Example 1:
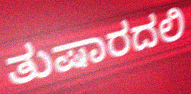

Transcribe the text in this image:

ತುಷಾರದಲಿ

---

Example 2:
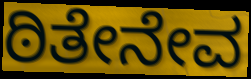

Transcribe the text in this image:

ಠಿತೇನೇವ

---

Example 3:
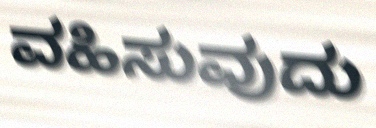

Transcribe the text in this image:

ವಹಿಸುವುದು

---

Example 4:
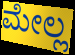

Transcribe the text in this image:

ಮೇಲ್ಲ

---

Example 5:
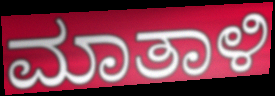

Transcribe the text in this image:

ಮಾತಾಳಿ